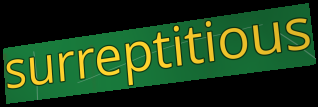
surreptitious